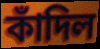
কাঁদিল